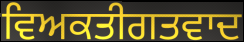
ਵਿਅਕਤੀਗਤਵਾਦ